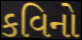
કવિનો